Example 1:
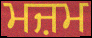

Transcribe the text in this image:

ਮਜ਼ਮ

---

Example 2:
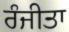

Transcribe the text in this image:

ਰੰਜੀਤਾ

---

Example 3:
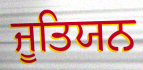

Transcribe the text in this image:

ਜੂਤਿਯਨ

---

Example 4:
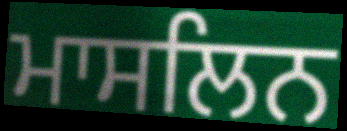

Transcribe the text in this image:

ਮਾਸਲਿਨ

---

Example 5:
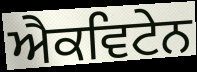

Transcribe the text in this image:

ਐਕਵਿਟੇਨ